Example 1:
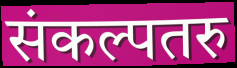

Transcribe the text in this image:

संकल्पतरु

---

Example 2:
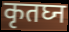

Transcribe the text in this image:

कृतघ्न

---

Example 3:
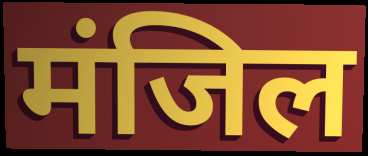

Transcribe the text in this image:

मंजिल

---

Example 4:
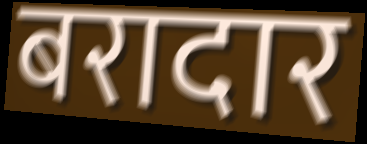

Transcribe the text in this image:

बरादार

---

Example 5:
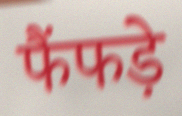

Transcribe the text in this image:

फैंफड़े